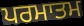
ਪਰਮਾਤਮ